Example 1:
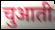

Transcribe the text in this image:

चुआती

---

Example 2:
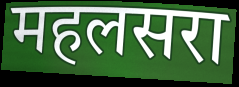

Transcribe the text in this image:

महलसरा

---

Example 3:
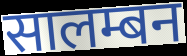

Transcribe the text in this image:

सालम्बन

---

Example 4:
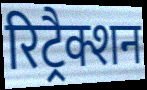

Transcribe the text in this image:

रिट्रैक्शन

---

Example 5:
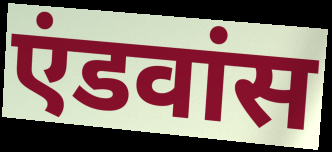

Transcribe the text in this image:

एंडवांस